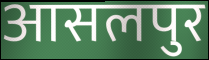
आसलपुर